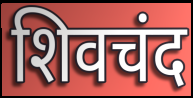
शिवचंद